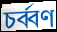
চর্ব্বণ